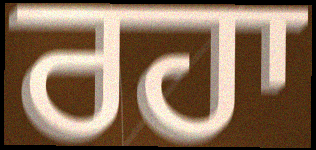
ਰਹਾ